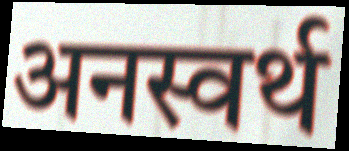
अनस्वर्थ